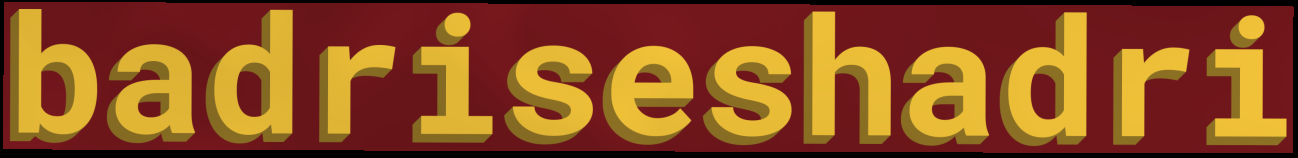
badriseshadri